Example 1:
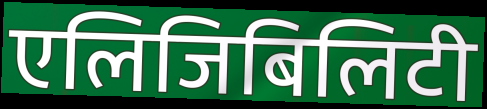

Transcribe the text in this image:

एलिजिबिलिटी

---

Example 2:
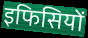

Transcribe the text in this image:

इफिसियों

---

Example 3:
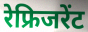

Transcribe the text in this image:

रेफ्रिजरेंट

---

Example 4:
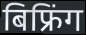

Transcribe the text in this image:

बिफ्रिंग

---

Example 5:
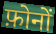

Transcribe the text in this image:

फ़ोनों